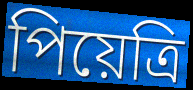
পিয়েত্রি